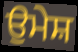
ਉਮੇਸ਼